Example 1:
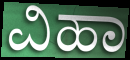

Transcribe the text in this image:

ವಿಹಾ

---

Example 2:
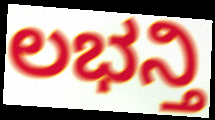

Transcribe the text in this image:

ಲಭನ್ತಿ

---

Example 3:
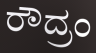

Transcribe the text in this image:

ರೌದ್ರಂ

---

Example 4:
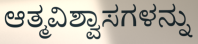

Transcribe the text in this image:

ಆತ್ಮವಿಶ್ವಾಸಗಳನ್ನು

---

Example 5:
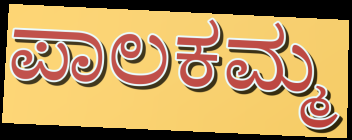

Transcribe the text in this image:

ಪಾಲಕಮ್ಮ